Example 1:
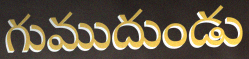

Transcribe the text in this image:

గుముదుండు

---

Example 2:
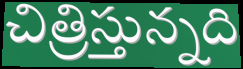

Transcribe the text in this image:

చిత్రిస్తున్నది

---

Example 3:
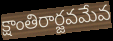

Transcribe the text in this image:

క్షాంతిరార్జవమేవ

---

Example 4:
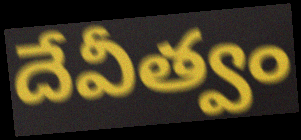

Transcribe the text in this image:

దేవీత్వం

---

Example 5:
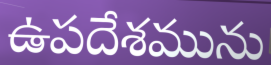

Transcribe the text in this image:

ఉపదేశమును